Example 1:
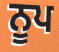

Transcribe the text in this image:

ਨੂਪ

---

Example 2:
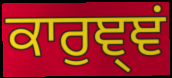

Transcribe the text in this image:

ਕਾਰੁਞ੍ਞਂ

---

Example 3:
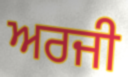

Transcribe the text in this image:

ਅਰਜੀ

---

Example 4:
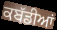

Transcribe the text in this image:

ਕਬੱਡੀਆਂ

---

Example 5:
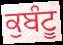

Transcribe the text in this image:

ਕੁਬੰਟੂ